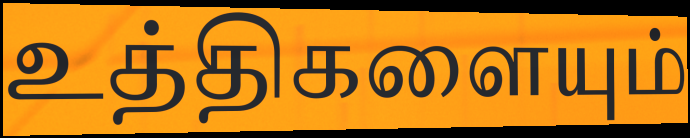
உத்திகளையும்